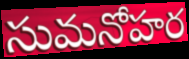
సుమనోహర